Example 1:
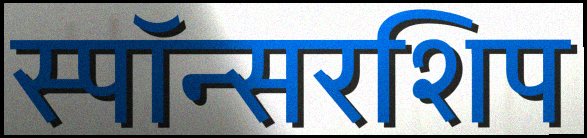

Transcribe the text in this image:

स्पॉन्सरशिप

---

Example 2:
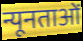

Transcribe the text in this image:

न्यूनताओं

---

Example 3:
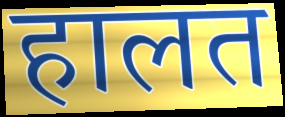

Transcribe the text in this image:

हालत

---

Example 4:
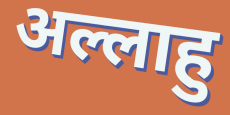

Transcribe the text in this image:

अल्लाहु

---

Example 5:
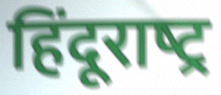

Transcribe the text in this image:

हिंदूराष्ट्र